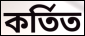
কর্তিত